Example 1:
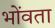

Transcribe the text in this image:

भोंवता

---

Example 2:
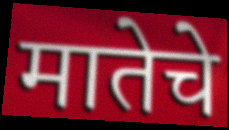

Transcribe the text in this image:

मातेचे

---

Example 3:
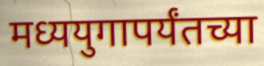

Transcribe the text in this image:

मध्ययुगापर्यंतच्या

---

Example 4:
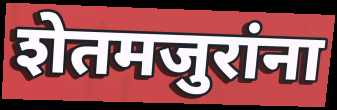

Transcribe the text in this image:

शेतमजुरांना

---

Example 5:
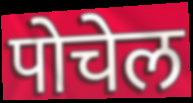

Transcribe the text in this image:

पोचेल